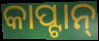
କାପ୍ଟାନ୍